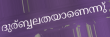
ദുര്ബ്ബലതയാണെന്നു്